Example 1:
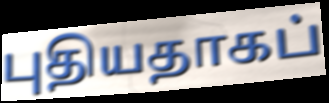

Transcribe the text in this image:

புதியதாகப்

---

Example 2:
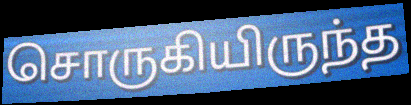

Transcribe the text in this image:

சொருகியிருந்த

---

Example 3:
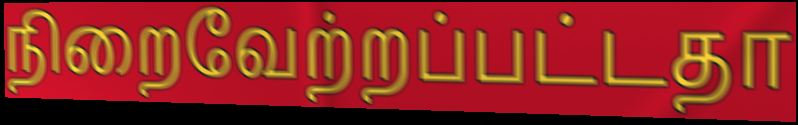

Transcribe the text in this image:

நிறைவேற்றப்பட்டதா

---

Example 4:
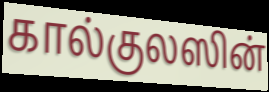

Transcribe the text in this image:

கால்குலஸின்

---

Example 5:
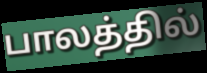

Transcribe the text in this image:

பாலத்தில்